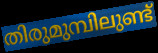
തിരുമുമ്പിലുണ്ട്